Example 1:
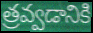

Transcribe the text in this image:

త్రవ్వడానికి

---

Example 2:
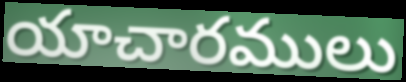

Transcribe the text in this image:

యాచారములు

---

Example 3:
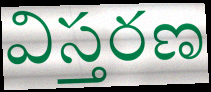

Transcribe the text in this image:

విస్తరణ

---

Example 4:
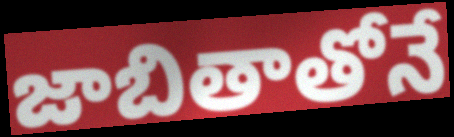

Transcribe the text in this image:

జాబితాతోనే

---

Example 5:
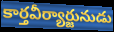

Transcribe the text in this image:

కార్తవీర్యార్జునుడు